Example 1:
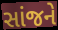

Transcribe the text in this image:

સાંજને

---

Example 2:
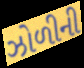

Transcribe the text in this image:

ઝોળીની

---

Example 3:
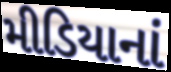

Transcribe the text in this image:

મીડિયાનાં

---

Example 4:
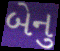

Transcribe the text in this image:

બેનુ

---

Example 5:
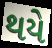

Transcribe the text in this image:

થયે